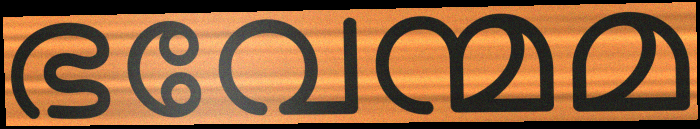
ഭവേന്മമ